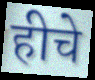
हीचे